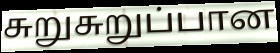
சுறுசுறுப்பான